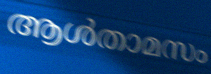
ആൾതാമസം